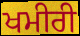
ਖਮੀਰੀ